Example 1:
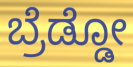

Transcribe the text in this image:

ಬ್ರೆಡ್ಡೋ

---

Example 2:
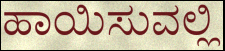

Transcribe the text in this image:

ಹಾಯಿಸುವಲ್ಲಿ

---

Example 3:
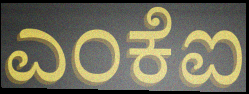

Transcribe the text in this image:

ಎಂಕೆಐ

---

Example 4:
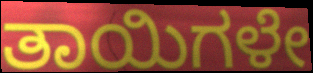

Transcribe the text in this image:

ತಾಯಿಗಳೇ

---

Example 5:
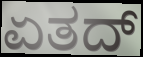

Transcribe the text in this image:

ಏತದ್